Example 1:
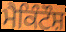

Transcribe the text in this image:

ਮੈਕਿੰਟੌਸ਼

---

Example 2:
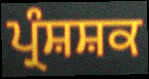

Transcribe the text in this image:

ਪ੍ਰੰਸ਼ਸ਼ਕ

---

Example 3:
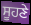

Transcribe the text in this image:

ਸੂਹਣੇ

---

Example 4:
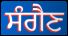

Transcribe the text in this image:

ਸੰਗੈਣ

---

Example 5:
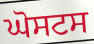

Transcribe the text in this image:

ਘੋਸਟਸ